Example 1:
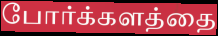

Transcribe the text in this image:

போர்க்களத்தை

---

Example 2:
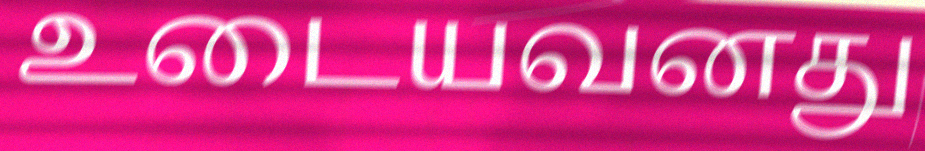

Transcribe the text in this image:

உடையவனது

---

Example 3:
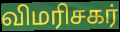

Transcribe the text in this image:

விமரிசகர்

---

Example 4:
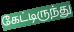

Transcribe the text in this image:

கேட்டிருந்து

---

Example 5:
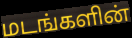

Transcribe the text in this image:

மடங்களின்